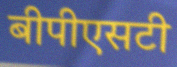
बीपीएसटी